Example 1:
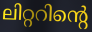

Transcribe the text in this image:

ലിറ്ററിന്റെ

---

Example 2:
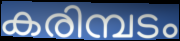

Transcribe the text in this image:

കരിമ്പടം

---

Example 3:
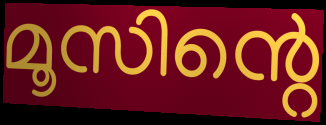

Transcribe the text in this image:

മൂസിന്റെ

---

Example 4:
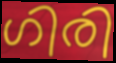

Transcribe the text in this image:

ഗിരി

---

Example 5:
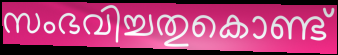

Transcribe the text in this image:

സംഭവിച്ചതുകൊണ്ട്